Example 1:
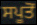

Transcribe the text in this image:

ਸਪੂਤੋਂ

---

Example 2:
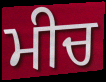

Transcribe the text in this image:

ਮੀਚ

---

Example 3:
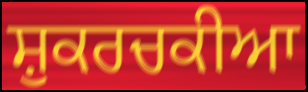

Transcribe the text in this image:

ਸ਼ੁਕਰਚਕੀਆ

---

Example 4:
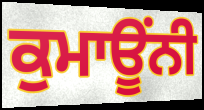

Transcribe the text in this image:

ਕੁਮਾਊਂਨੀ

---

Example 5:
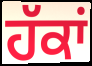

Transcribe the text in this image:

ਹੱਕਾਂ